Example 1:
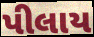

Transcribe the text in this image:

પીલાય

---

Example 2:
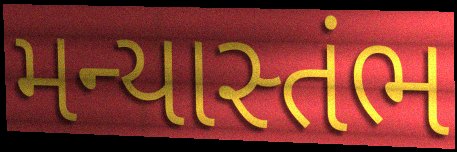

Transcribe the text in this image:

મન્યાસ્તંભ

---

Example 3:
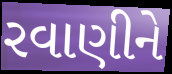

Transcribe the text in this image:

રવાણીને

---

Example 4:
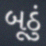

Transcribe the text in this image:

બૂઠું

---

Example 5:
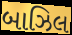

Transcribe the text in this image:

બાઝિલ